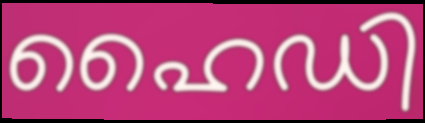
ഹൈഡി